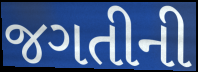
જગતીની